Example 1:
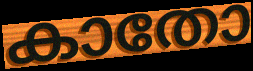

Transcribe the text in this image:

കാതോ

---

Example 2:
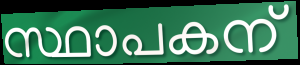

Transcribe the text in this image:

സ്ഥാപകന്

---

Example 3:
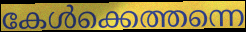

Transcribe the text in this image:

കേൾക്കെത്തന്നെ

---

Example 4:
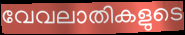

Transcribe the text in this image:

വേവലാതികളുടെ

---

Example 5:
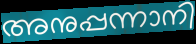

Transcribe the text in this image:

അനുപ്പന്നാനി